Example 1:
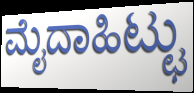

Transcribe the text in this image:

ಮೈದಾಹಿಟ್ಟು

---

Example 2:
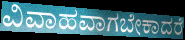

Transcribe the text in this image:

ವಿವಾಹವಾಗಬೇಕಾದರೆ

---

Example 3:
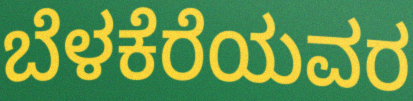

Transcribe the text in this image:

ಬೆಳಕೆರೆಯವರ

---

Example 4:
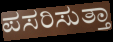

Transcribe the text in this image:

ಪಸರಿಸುತ್ತಾ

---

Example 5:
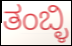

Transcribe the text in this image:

ತಂಬ್ಳಿ